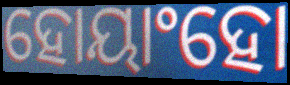
ହୋୟାଂହୋ